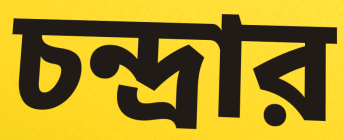
চন্দ্রার